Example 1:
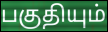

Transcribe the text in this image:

பகுதியும்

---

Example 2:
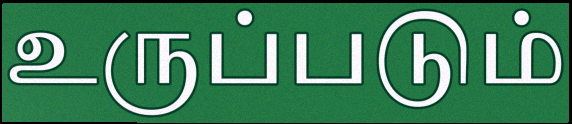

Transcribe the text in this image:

உருப்படும்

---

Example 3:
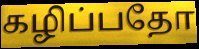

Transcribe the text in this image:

கழிப்பதோ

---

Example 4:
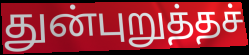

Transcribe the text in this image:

துன்புறுத்தச்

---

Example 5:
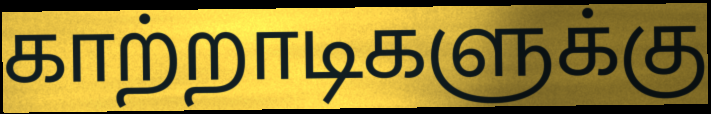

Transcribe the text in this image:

காற்றாடிகளுக்கு